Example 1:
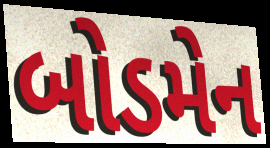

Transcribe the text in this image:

બોડમેન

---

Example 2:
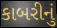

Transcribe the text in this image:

કાબરીનું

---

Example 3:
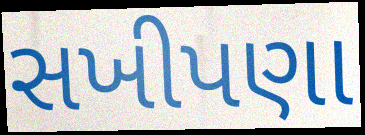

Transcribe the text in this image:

સખીપણા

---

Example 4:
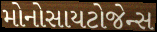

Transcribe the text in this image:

મોનોસાયટોજેન્સ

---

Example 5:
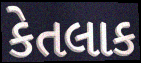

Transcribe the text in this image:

કેતલાક